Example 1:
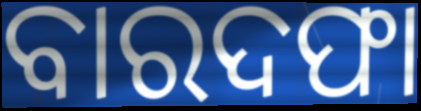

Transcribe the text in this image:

ବାରଦଫା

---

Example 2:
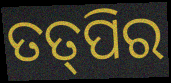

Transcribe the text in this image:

ତତ୍‌ପିର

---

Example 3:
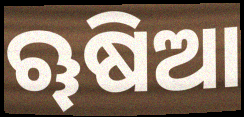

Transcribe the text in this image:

ୠଷିଆ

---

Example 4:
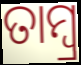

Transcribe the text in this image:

ତାମ୍ବ୍ର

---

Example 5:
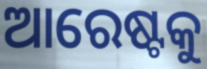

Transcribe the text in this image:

ଆରେଷ୍ଟକୁ